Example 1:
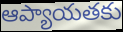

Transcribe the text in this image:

ఆప్యాయతకు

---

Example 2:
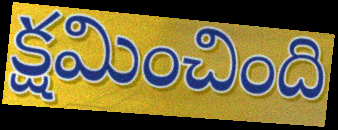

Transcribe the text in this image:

క్షమించింది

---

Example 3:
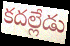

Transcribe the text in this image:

కదల్లేడు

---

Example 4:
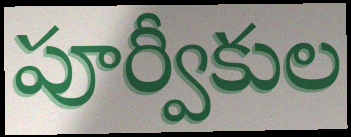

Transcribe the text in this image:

పూర్వీకుల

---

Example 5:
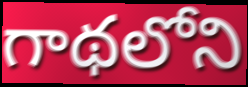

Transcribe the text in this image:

గాథలోని